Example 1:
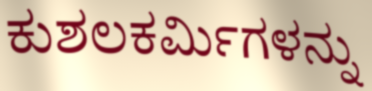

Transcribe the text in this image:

ಕುಶಲಕರ್ಮಿಗಳನ್ನು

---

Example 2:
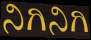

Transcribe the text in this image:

ನಿಗಿನಿಗಿ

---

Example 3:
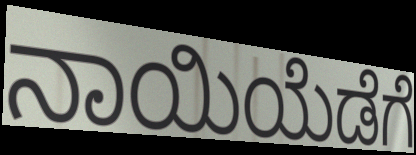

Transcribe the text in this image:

ನಾಯಿಯೆಡೆಗೆ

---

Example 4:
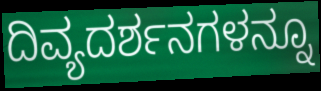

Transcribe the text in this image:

ದಿವ್ಯದರ್ಶನಗಳನ್ನೂ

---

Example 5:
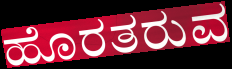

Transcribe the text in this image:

ಹೊರತರುವ